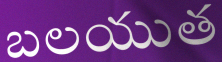
బలయుత